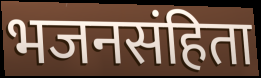
भजनसंहिता